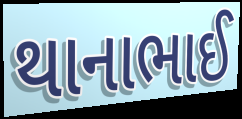
થાનાભાઈ